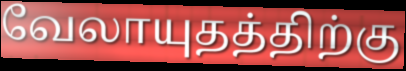
வேலாயுதத்திற்கு